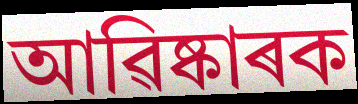
আৱিষ্কাৰক